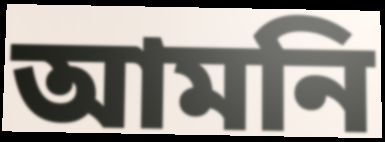
আমনি